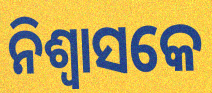
ନିଶ୍ଵାସକେ